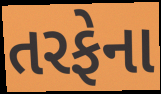
તરફેના